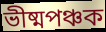
ভীষ্মপঞ্চক